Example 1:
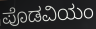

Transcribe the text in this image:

ಪೊಡವಿಯಂ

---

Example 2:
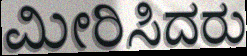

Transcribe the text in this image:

ಮೀರಿಸಿದರು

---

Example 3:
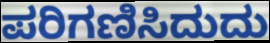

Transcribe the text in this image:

ಪರಿಗಣಿಸಿದುದು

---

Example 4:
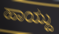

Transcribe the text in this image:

ಹಾಯ್ದು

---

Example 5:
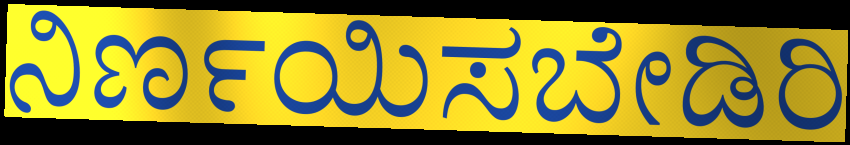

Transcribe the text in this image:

ನಿರ್ಣಯಿಸಬೇಡಿರಿ